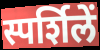
स्पर्शिलें